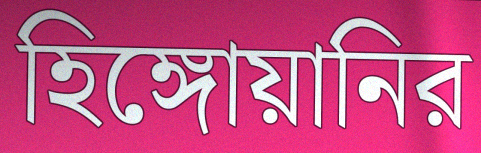
হিঙ্গোয়ানির